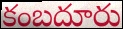
కంబదూరు